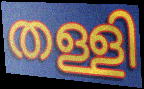
തള്ളി